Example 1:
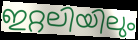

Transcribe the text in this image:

ഇറ്റലിയിലും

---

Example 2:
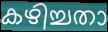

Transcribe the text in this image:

കഴിച്ചതാ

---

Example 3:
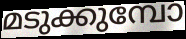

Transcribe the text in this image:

മടുക്കുമ്പോ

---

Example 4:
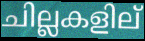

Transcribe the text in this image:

ചില്ലകളില്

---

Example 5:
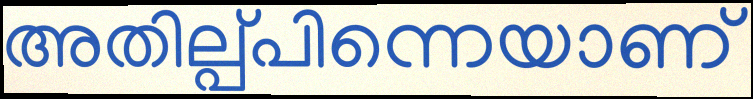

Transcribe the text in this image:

അതില്പ്പിന്നെയാണ്